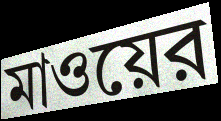
মাওয়ের